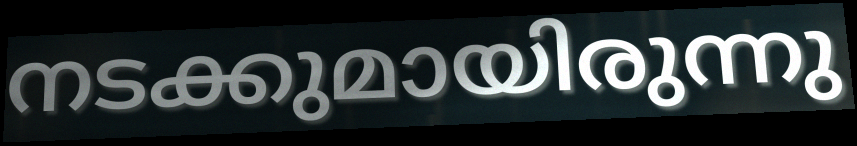
നടക്കുമായിരുന്നു